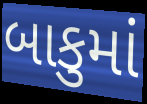
બાકુમાં